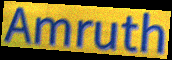
Amruth